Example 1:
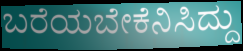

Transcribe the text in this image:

ಬರೆಯಬೇಕೆನಿಸಿದ್ದು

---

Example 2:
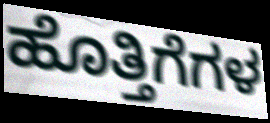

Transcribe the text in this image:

ಹೊತ್ತಿಗೆಗಳ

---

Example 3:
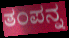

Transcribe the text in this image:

ತಂಪನ್ನ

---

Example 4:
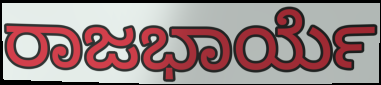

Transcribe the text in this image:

ರಾಜಭಾರ್ಯೆ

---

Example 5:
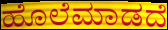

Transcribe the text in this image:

ಹೊಲೆಮಾಡದೆ